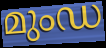
മുംഡ